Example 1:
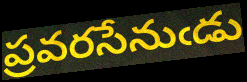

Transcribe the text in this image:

ప్రవరసేనుఁడు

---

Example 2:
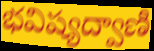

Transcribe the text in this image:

భవిష్యద్వాణి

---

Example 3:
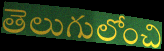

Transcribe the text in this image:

తెలుగులోంచి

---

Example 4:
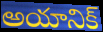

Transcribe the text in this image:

అయానిక్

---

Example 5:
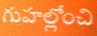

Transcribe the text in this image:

గుహల్లోంచి